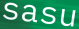
sasu